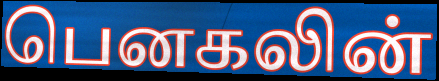
பெனகலின்